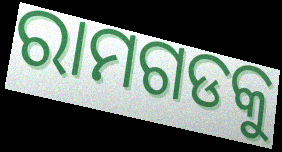
ରାମଗଡକୁ